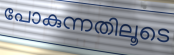
പോകുന്നതിലൂടെ